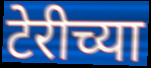
टेरीच्या